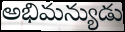
అభిమన్యుడు